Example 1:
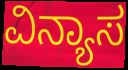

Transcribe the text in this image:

ವಿನ್ಯಾಸ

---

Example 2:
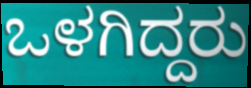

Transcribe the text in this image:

ಒಳಗಿದ್ದರು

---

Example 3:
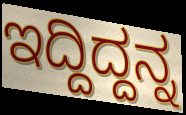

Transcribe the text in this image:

ಇದ್ದಿದ್ದನ್ನ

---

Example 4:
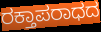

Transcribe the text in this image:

ರಕ್ತಾಪರಾಧದ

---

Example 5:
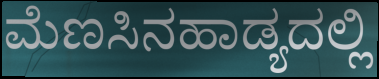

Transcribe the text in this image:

ಮೆಣಸಿನಹಾಡ್ಯದಲ್ಲಿ